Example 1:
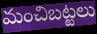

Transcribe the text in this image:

మంచిబట్టలు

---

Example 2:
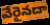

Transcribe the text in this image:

వేరైనదా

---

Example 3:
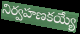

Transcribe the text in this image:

నిర్వహణకయ్యే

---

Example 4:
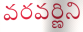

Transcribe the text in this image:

వరవర్ణిని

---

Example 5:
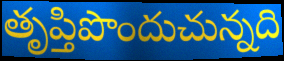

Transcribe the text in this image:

తృప్తిపొందుచున్నది